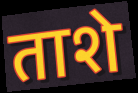
ताशे